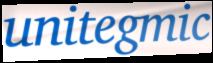
unitegmic